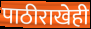
पाठीराखेही